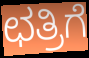
ಛತ್ರಿಗೆ